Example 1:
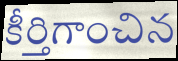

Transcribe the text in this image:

కీర్తిగాంచిన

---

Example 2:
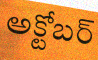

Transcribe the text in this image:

అక్టోబర్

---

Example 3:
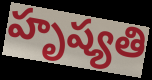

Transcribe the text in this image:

హృష్యతి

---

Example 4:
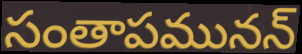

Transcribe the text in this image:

సంతాపమునన్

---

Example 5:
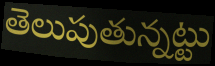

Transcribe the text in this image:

తెలుపుతున్నట్టు